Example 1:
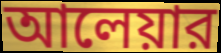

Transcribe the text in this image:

আলেয়ার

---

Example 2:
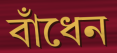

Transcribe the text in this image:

বাঁধেন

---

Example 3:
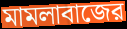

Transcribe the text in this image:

মামলাবাজের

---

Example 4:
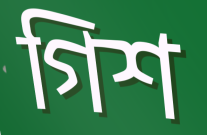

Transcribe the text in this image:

গিশ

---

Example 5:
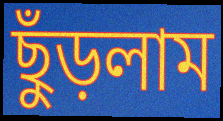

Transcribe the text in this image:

ছুঁড়লাম